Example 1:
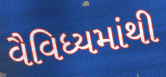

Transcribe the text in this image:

વૈવિધ્યમાંથી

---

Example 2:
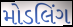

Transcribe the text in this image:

મોડલિંગ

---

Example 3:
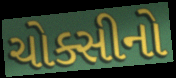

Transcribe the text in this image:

ચોક્સીનો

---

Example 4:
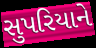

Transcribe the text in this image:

સુપરિયાને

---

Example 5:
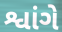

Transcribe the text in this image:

શ્વાંગે